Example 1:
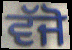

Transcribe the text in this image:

ਵੱਜੋ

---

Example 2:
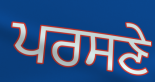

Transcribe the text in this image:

ਪਰਸਣੇ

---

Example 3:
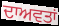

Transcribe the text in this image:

ਦਾਅਵਤਾਂ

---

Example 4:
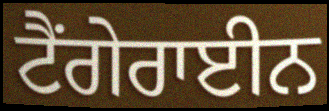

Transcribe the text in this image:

ਟੈਂਗੇਰਾਈਨ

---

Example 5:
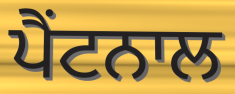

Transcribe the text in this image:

ਪੈਂਟਨਾਲ